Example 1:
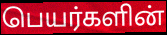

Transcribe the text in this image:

பெயர்களின்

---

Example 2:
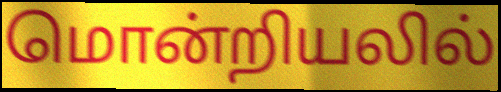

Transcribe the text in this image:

மொன்றியலில்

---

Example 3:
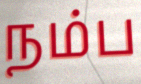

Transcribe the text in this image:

நம்ப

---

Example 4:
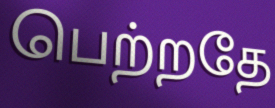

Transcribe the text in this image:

பெற்றதே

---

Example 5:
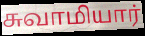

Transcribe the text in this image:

சுவாமியார்